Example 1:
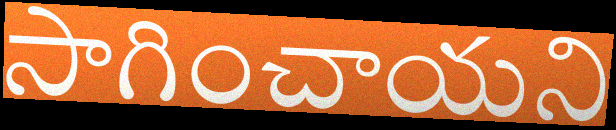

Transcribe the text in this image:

సాగించాయని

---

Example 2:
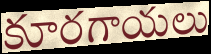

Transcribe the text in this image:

కూరగాయలు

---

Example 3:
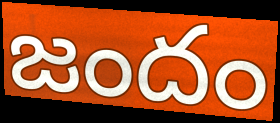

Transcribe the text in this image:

జందం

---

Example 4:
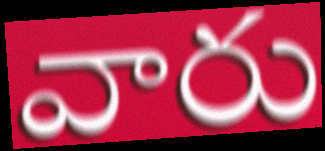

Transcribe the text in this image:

వారు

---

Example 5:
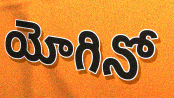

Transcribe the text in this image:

యోగినో